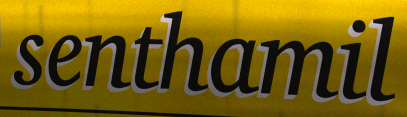
senthamil